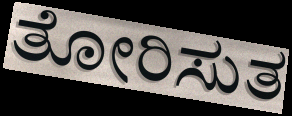
ತೋರಿಸುತ